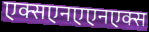
एक्सएनएएनएक्स